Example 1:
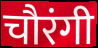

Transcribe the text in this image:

चौरंगी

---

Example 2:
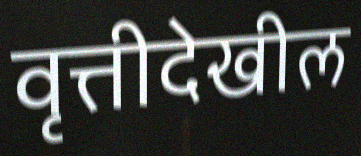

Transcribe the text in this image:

वृत्तीदेखील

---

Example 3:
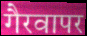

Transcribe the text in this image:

गैरवापर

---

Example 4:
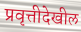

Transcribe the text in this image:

प्रवृत्तीदेखील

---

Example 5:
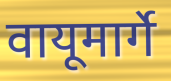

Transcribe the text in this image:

वायूमार्गे